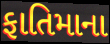
ફાતિમાના